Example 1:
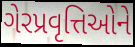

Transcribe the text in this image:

ગેરપ્રવૃત્તિઓને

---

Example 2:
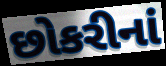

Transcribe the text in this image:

છોકરીનાં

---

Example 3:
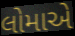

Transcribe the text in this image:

લોમાએ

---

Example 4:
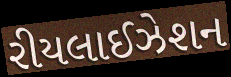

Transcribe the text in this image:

રીયલાઈઝેશન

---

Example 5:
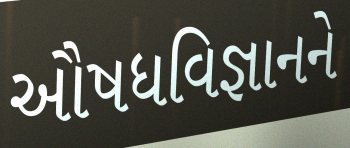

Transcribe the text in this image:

ઔષધવિજ્ઞાનને